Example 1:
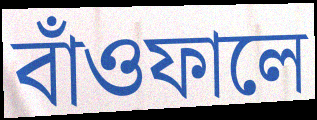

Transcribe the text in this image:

বাঁওফালে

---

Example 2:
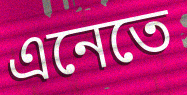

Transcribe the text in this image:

এনেতে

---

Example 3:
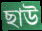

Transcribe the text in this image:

ছাউ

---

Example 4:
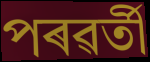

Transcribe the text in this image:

পৰৱৰ্তী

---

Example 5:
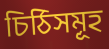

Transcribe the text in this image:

চিঠিসমূহ